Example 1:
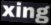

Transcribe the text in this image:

xing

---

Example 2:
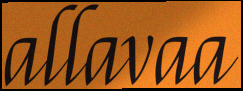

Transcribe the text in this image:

allavaa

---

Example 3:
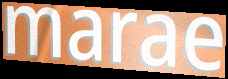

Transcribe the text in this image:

marae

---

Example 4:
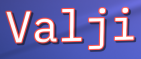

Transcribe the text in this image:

Valji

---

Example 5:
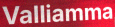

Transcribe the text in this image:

Valliamma